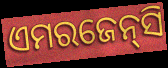
ଏମରଜେନ୍‌ସି